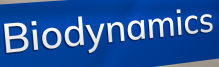
Biodynamics